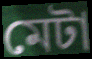
মেটা